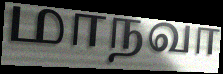
மாநவா